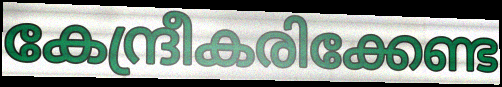
കേന്ദ്രീകരിക്കേണ്ട